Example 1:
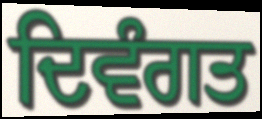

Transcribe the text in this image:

ਦਿਵੰਗਤ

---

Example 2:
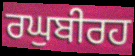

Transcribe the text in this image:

ਰਘੁਬੀਰਹ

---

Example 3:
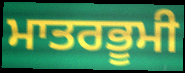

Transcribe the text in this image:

ਮਾਤਰਭੂਮੀ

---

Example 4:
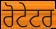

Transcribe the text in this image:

ਰੋਟੇਟਰ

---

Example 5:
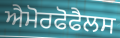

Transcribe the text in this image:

ਐਮੋਰਫੋਫੈਲਸ